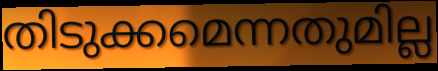
തിടുക്കമെന്നതുമില്ല